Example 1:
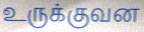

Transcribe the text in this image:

உருக்குவன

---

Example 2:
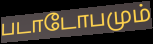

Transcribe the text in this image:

படாடோபமும்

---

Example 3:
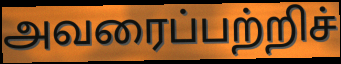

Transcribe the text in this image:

அவரைப்பற்றிச்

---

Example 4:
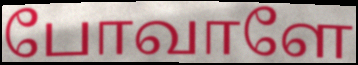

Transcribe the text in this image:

போவாளே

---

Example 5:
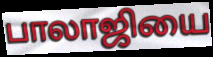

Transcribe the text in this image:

பாலாஜியை